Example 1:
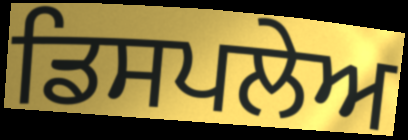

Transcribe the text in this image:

ਡਿਸਪਲੇਅ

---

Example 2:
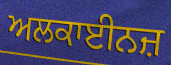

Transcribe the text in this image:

ਅਲਕਾਈਨਜ਼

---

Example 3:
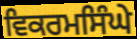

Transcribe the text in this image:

ਵਿਕਰਮਸਿੰਘੇ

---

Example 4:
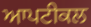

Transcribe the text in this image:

ਆਪਟੀਕਲ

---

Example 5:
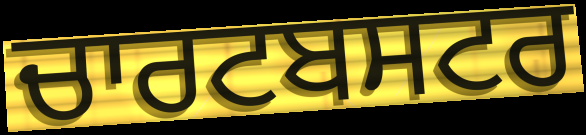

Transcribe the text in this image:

ਚਾਰਟਬਸਟਰ